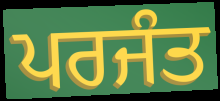
ਪਰਜੰਤ